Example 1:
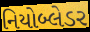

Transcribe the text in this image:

નિયોબ્લેડર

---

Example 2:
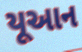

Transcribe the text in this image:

યૂઆન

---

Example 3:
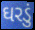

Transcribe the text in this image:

ઘરડું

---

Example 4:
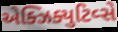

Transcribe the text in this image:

એક્ઝિક્યુટિવ્સે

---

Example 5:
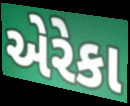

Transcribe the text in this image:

એરેકા